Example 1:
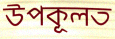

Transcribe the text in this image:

উপকূলত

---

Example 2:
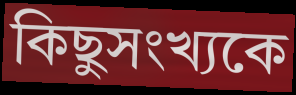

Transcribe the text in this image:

কিছুসংখ্যকে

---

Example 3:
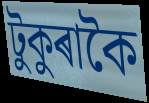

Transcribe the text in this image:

টুকুৰাকৈ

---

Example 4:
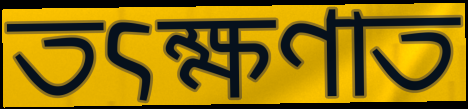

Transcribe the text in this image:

তৎক্ষণাত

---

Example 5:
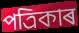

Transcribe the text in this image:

পত্ৰিকাৰ